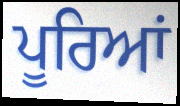
ਪੂਰਿਆਂ